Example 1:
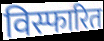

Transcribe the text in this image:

विस्फारित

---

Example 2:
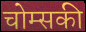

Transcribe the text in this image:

चोम्सकी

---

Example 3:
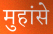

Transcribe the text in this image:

मुहांसे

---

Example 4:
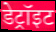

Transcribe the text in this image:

डेट्रॉइट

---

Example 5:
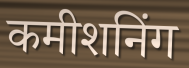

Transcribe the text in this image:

कमीशनिंग